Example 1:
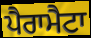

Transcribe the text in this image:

ਪੈਰਾਮੈਟਾ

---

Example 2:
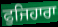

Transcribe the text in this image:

ਫੁਜਿਹਾਰਾ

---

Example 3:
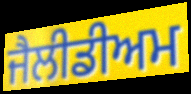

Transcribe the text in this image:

ਜੈਲੀਡੀਅਮ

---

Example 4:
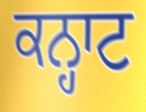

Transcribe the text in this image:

ਕਨ੍ਹਾਟ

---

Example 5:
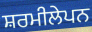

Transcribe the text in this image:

ਸ਼ਰਮੀਲੇਪਨ